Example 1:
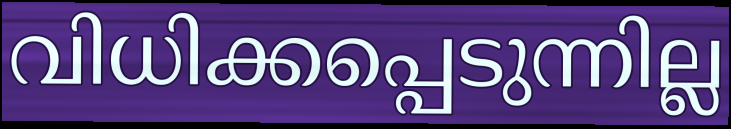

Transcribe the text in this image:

വിധിക്കപ്പെടുന്നില്ല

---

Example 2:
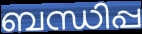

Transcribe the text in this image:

ബന്ധിപ്പ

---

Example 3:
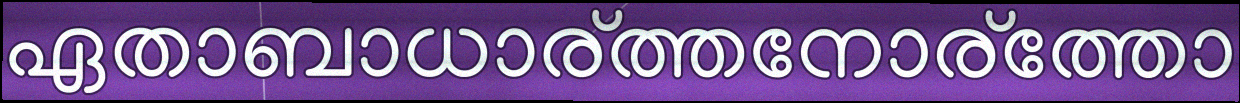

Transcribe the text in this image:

ഏതാബാധാര്ത്തനോര്ത്തോ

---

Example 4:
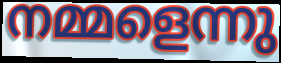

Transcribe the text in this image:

നമ്മളെന്നു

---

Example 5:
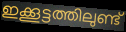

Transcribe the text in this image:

ഇക്കൂട്ടത്തിലുണ്ട്